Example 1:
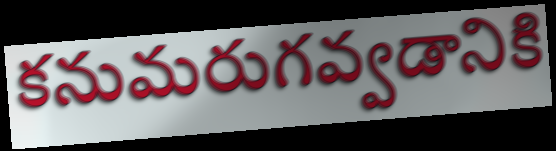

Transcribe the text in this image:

కనుమరుగవ్వడానికి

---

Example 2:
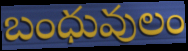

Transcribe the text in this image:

బంధువులం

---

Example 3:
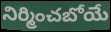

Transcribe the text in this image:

నిర్మించబోయే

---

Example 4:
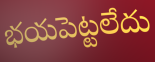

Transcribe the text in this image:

భయపెట్టలేదు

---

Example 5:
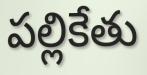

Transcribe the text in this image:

పల్లికేతు